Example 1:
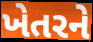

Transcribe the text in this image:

ખેતરને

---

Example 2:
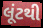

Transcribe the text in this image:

લૂંટથી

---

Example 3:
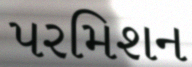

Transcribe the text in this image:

પરમિશન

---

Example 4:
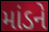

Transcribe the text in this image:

માંડને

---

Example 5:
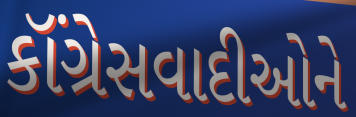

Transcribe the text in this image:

કૉંગ્રેસવાદીઓને